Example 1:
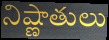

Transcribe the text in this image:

నిష్ణాతులు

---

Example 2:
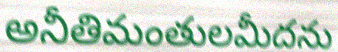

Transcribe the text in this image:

అనీతిమంతులమీదను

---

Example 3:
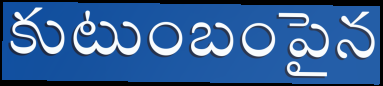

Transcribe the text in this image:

కుటుంబంపైన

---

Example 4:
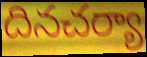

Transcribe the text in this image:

దినచర్యా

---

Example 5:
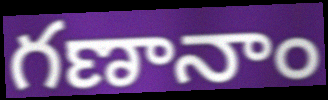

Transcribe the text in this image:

గణానాం